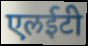
एलईटी